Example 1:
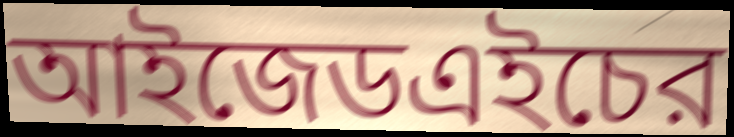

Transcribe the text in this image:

আইজেডএইচের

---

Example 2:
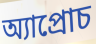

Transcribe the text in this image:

অ্যাপ্রোচ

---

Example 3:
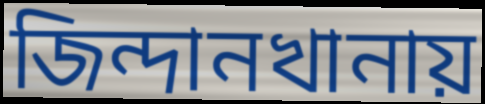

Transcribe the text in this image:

জিন্দানখানায়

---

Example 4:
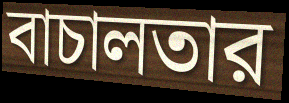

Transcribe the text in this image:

বাচালতার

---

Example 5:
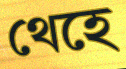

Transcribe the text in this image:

থেহে